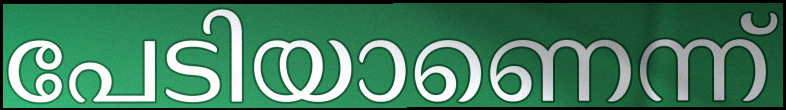
പേടിയാണെന്ന്